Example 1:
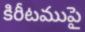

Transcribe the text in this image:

కిరీటముపై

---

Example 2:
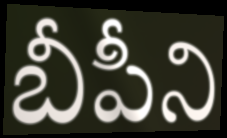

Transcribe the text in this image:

బీపీని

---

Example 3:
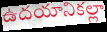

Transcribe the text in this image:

ఉదయానికల్లా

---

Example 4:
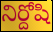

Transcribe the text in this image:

నిర్దోషి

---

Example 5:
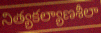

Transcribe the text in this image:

నిత్యకల్యాణశీలా